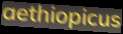
aethiopicus